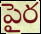
పైర